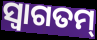
ସ୍ୱାଗତମ୍